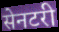
सेनटरी